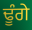
ਢੂੰਗੇ